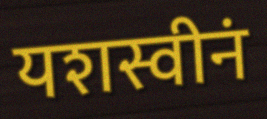
यशस्वीनं